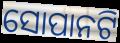
ସୋପାନଟି